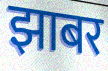
झाबर